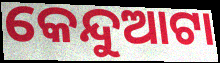
କେନ୍ଦୁଆଟା